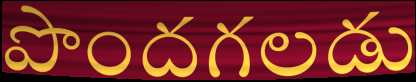
పొందగలడు